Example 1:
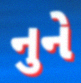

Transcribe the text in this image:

નુને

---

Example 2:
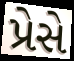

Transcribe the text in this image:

પ્રેસે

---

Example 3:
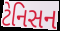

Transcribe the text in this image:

ટેનિસન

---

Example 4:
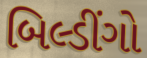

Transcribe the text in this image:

બિલ્ડીંગો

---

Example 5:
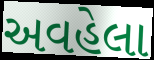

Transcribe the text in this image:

અવહેલા